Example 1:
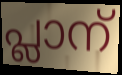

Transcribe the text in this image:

പ്ലാന്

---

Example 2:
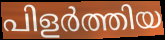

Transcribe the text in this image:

പിളർത്തിയ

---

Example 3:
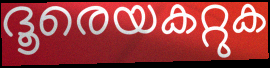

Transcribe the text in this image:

ദൂരെയകറ്റുക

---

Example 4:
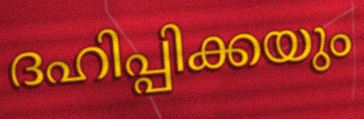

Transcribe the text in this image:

ദഹിപ്പിക്കയും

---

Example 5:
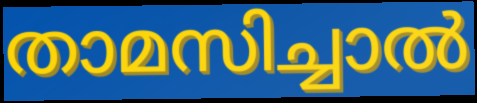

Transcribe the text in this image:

താമസിച്ചാൽ